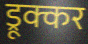
ड्रूक्कर